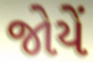
જોયેં